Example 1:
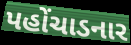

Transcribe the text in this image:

પહોંચાડનાર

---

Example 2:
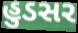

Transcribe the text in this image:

હુડસર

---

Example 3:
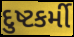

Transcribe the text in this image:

દુષ્ટકર્મી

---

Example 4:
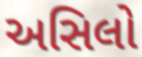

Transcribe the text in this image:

અસિલો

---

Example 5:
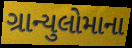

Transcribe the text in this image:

ગ્રાન્યુલોમાના